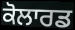
ਕੋਲਾਰਡ